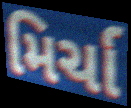
મિર્ચા